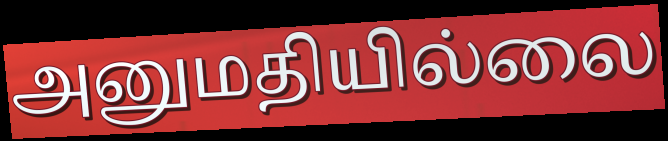
அனுமதியில்லை